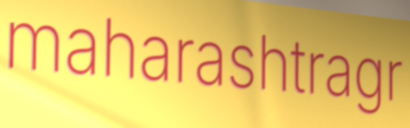
maharashtragr